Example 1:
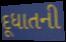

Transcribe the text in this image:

દૂધાતની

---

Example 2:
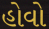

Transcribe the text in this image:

હોવો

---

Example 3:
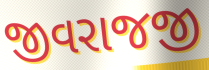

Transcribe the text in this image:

જીવરાજજી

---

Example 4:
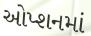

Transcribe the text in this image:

ઓપ્શનમાં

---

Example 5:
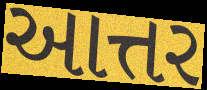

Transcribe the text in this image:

આત્તર